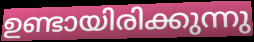
ഉണ്ടായിരിക്കുന്നു